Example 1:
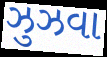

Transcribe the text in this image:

ઝુઝવા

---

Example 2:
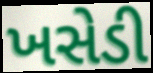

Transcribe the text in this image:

ખસેડી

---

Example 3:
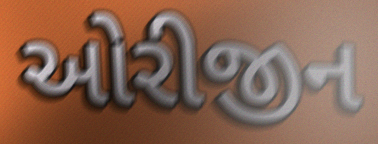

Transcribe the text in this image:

ઓરીજીન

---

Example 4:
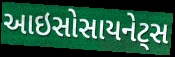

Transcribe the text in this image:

આઇસોસાયનેટ્સ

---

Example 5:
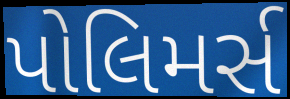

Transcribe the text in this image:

પોલિમર્સ